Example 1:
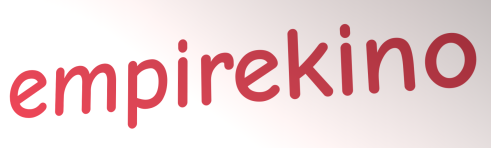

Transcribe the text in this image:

empirekino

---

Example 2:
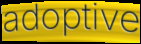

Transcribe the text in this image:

adoptive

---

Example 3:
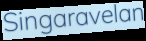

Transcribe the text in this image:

Singaravelan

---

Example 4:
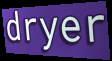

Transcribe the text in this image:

dryer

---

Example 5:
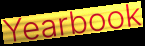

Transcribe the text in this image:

Yearbook